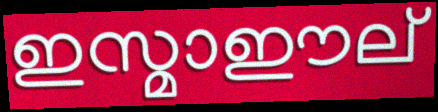
ഇസ്മാഈല്